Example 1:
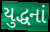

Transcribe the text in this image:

યુદ્ધનાં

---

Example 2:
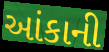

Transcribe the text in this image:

આંકાની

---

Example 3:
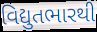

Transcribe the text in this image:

વિદ્યુતભારથી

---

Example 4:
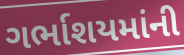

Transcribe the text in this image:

ગર્ભાશયમાંની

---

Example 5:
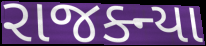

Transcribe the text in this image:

રાજક્ન્યા